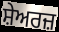
ਸ਼ੇਅਰਜ਼